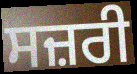
ਸਜ਼ਰੀ